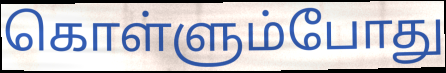
கொள்ளும்போது